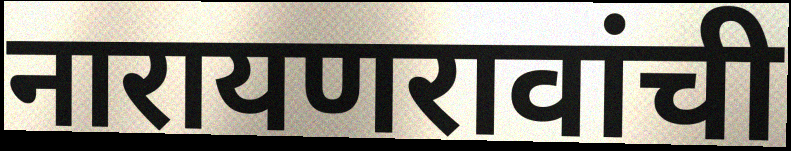
नारायणरावांची